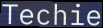
Techie